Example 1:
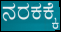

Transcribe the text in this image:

ನರಕಕ್ಕೆ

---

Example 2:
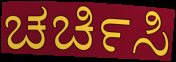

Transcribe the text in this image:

ಚರ್ಚಿಸಿ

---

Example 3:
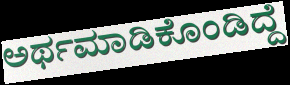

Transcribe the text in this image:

ಅರ್ಥಮಾಡಿಕೊಂಡಿದ್ದೆ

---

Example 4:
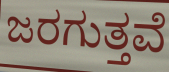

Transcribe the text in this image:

ಜರಗುತ್ತವೆ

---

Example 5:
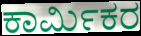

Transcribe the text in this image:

ಕಾರ್ಮಿಕರ